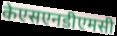
केएसएनडीएमसी